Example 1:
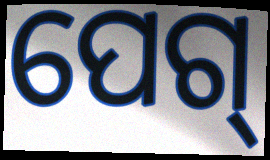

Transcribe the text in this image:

ପେଗ୍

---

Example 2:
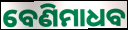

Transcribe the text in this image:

ବେଣିମାଧବ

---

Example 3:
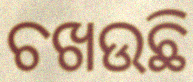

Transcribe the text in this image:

ଚଖଉଛି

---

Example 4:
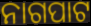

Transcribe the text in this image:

ନାଗପାଟ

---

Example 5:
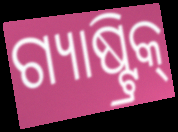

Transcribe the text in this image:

ଗ୍ୟାଷ୍ଟ୍ରିକ୍